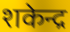
शकेन्द्र